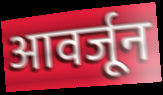
आवर्जून